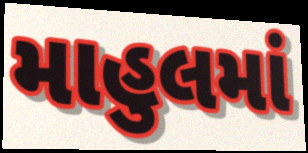
માહુલમાં